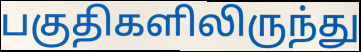
பகுதிகளிலிருந்து